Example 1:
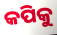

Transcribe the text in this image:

କପିକୁ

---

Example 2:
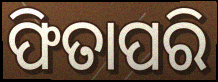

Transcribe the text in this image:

ଫିତାପରି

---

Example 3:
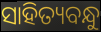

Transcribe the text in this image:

ସାହିତ୍ୟବନ୍ଧୁ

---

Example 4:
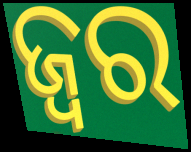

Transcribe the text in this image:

ଜ୍ଵର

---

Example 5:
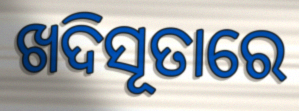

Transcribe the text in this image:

ଖଦିସୂତାରେ